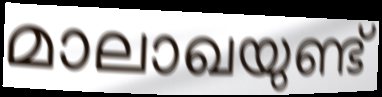
മാലാഖയുണ്ട്